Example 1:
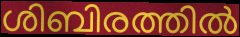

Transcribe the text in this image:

ശിബിരത്തിൽ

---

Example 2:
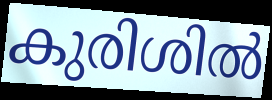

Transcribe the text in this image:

കുരിശിൽ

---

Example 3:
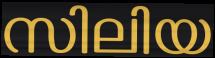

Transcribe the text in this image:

സിലിയ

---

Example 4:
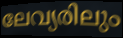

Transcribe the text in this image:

ലേവ്യരിലും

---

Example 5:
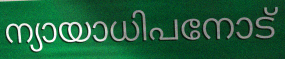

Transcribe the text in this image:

ന്യായാധിപനോട്